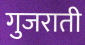
गुजराती